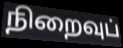
நிறைவுப்